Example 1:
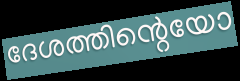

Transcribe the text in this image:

ദേശത്തിന്റെയോ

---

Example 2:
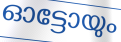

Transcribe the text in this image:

ഓട്ടോയും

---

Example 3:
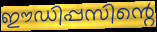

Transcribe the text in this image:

ഈഡിപ്പസിന്റെ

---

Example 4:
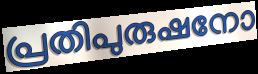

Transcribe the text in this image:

പ്രതിപുരുഷനോ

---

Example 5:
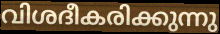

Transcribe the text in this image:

വിശദീകരിക്കുന്നു